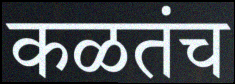
कळतंच